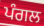
ਪੰਗਲ